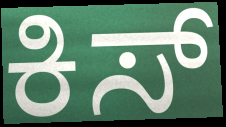
ಕಿಸ್